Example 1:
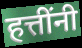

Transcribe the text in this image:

हत्तींनी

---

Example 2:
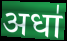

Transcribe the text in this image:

अधा॑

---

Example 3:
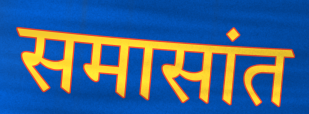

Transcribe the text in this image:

समासांत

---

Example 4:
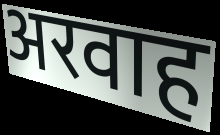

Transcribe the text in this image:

अरवाह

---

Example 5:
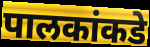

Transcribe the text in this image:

पालकांकडे